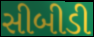
સીબીડી